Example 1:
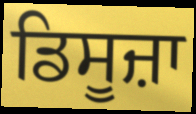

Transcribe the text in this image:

ਡਿਸੂਜ਼ਾ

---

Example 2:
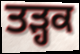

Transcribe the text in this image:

ਤੜ੍ਹਕ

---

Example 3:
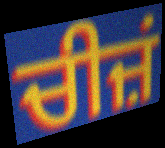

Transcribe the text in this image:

ਚੀਜ਼ਂ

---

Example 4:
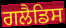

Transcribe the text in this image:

ਗਲੈਡਿਸ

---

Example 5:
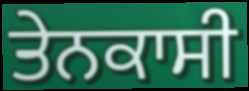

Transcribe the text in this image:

ਤੇਨਕਾਸੀ